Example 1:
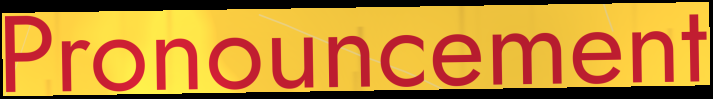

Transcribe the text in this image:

Pronouncement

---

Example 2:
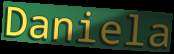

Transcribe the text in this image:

Daniela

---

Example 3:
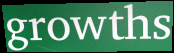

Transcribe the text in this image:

growths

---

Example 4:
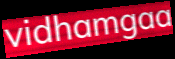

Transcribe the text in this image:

vidhamgaa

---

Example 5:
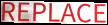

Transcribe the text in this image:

REPLACE